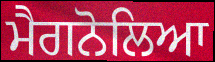
ਮੈਗਨੋਲਿਆ